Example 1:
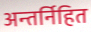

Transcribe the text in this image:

अन्तर्निहित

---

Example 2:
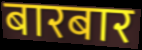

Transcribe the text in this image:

बारबार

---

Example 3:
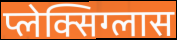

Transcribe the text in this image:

प्लेक्सिग्लास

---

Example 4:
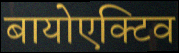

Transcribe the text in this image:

बायोएक्टिव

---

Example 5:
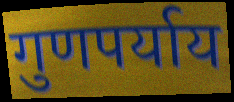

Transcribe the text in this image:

गुणपर्याय